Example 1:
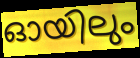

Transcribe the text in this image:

ഓയിലും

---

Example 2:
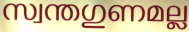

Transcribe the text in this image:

സ്വന്തഗുണമല്ല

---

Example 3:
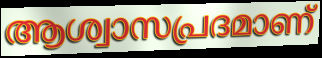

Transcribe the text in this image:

ആശ്വാസപ്രദമാണ്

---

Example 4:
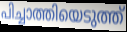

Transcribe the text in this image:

പിച്ചാത്തിയെടുത്ത്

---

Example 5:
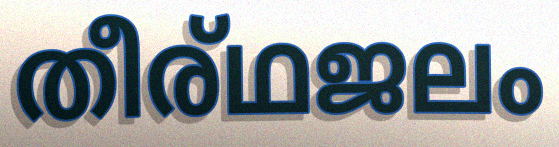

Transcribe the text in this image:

തീര്ഥജലം